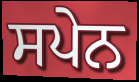
ਸਪੇਨ